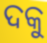
ଦକୁ